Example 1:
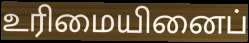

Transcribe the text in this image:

உரிமையினைப்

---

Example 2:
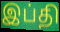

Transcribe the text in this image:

இப்தி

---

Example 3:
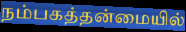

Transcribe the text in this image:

நம்பகத்தன்மையில்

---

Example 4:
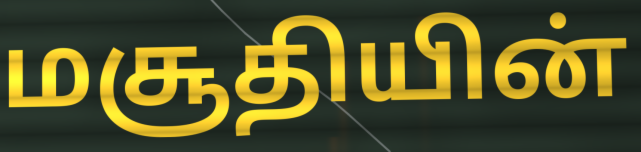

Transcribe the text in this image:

மசூதியின்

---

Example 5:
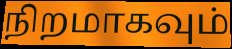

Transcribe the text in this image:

நிறமாகவும்